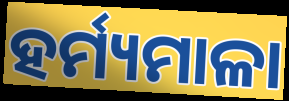
ହର୍ମ୍ୟମାଳା